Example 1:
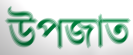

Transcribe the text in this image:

উপজাত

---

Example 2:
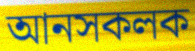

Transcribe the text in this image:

আনসকলক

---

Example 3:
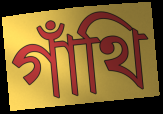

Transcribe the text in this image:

গাঁথি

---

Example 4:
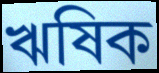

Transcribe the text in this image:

ঋষিক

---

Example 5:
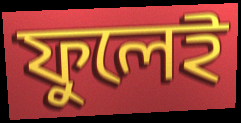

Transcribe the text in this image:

ফুলেই